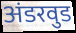
अंडरवुड